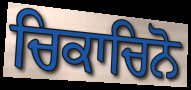
ਚਿਕਾਚਿਨੋ